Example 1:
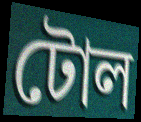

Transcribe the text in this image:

টোল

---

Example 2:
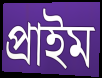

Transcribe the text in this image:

প্রাইম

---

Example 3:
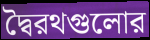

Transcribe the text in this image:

দ্বৈরথগুলোর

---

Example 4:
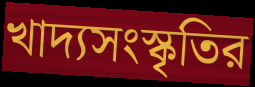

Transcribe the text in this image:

খাদ্যসংস্কৃতির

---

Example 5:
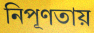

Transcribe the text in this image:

নিপূণতায়